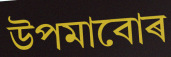
উপমাবোৰ